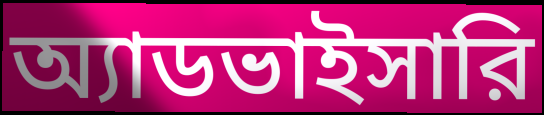
অ্যাডভাইসারি